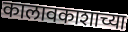
कालावकाशाच्या